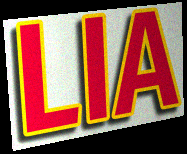
LIA